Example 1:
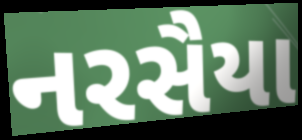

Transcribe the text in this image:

નરસૈયા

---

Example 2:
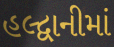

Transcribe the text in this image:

હલ્દ્વાનીમાં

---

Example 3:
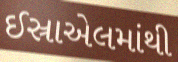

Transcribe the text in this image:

ઈસ્રાએલમાંથી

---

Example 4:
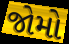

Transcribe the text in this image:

જોમો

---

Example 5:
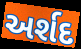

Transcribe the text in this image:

અર્શદ